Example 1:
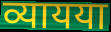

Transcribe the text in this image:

व्यायया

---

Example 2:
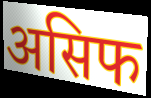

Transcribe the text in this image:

असिफ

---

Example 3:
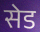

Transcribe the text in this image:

सेड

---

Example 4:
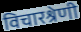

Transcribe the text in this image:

विचारश्रेणी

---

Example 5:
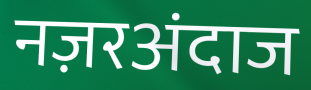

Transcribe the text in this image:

नज़रअंदाज